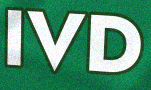
IVD